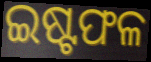
ଇଷ୍ଟଫଳ